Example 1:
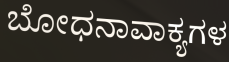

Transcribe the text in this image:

ಬೋಧನಾವಾಕ್ಯಗಳ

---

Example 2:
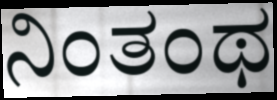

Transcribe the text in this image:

ನಿಂತಂಥ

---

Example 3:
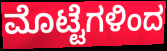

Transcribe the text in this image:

ಮೊಟ್ಟೆಗಳಿಂದ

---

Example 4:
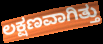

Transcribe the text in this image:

ಲಕ್ಷಣವಾಗಿತ್ತು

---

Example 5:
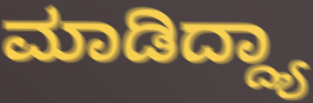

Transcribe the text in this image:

ಮಾಡಿದ್ದ್ಯಾ